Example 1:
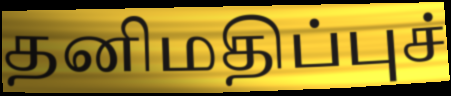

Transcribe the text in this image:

தனிமதிப்புச்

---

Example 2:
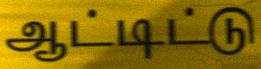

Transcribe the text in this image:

ஆட்டிட்டு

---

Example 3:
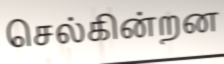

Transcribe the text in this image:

செல்கின்றன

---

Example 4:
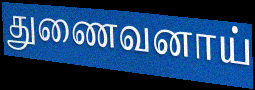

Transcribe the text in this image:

துணைவனாய்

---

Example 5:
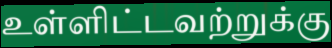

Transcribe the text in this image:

உள்ளிட்டவற்றுக்கு